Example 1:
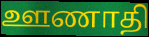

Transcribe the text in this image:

ஊணாதி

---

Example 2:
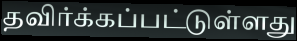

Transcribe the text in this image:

தவிர்க்கப்பட்டுள்ளது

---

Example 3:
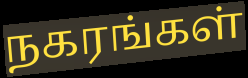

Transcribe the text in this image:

நகரங்கள்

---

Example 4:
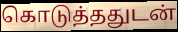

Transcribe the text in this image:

கொடுத்ததுடன்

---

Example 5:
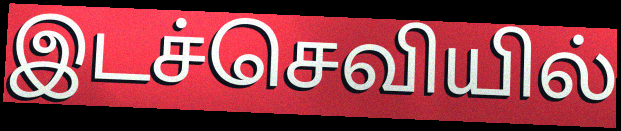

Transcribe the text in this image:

இடச்செவியில்